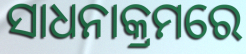
ସାଧନାକ୍ରମରେ